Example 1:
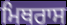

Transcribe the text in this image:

ਮਿਥਰਾਸ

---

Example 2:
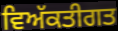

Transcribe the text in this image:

ਵਿਅੱਕਤੀਗਤ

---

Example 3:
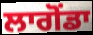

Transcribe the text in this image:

ਲਾਗੋਂਡਾ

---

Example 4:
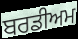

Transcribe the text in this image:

ਬਰਡੀਅਮ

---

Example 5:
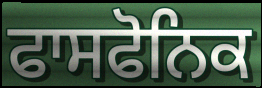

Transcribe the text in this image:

ਫਾਸਫੋਨਿਕ